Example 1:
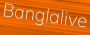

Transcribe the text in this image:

Banglalive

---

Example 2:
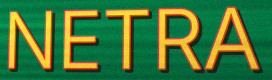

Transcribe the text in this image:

NETRA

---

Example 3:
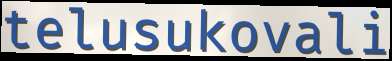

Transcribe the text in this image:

telusukovali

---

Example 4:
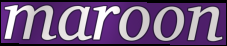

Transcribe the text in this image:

maroon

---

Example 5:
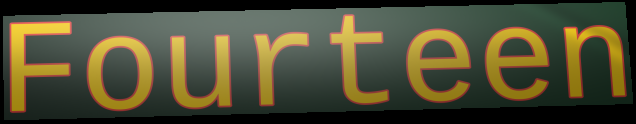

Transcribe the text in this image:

Fourteen